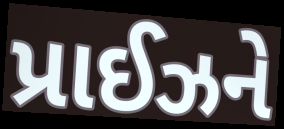
પ્રાઈઝને